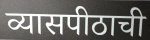
व्यासपीठाची